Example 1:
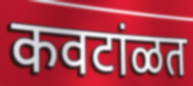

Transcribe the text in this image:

कवटांळत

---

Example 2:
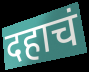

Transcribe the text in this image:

दहाचं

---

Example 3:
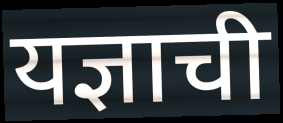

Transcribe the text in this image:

यज्ञाची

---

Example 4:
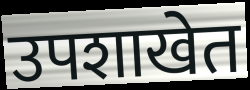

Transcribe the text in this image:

उपशाखेत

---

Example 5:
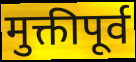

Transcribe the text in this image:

मुक्तीपूर्व